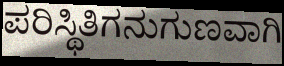
ಪರಿಸ್ಥಿತಿಗನುಗುಣವಾಗಿ